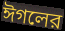
ঈগলের